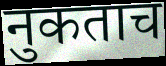
नुकताच